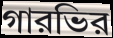
গারভির